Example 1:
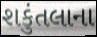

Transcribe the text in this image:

શકુંતલાના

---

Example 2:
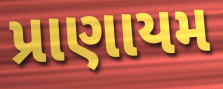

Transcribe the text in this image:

પ્રાણાયમ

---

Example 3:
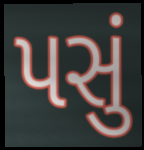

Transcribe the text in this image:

પસું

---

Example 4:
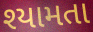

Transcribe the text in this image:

શ્યામતા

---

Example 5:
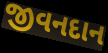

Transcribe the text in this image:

જીવનદાન